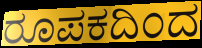
ರೂಪಕದಿಂದ